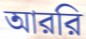
আররি